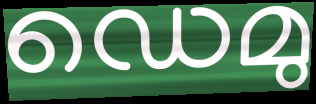
ഡെമു